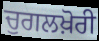
ਚੁਗਲਖ਼ੋਰੀ